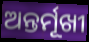
ଅନ୍ତର୍ମୂଖୀ